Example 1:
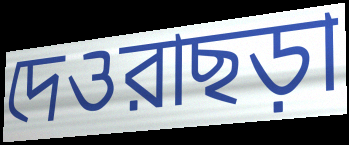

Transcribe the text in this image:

দেওরাছড়া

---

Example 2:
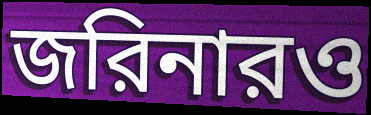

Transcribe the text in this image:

জরিনারও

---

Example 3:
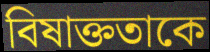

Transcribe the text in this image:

বিষাক্ততাকে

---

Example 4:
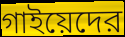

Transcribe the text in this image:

গাইয়েদের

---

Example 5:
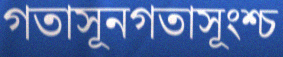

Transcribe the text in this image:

গতাসূনগতাসূংশ্চ